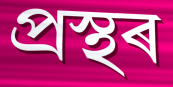
প্ৰস্থৰ